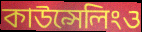
কাউন্সেলিংও